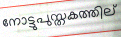
നോട്ടുപുസ്തകത്തില്